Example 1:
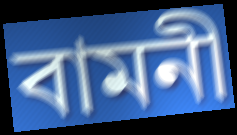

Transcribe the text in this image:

বামনী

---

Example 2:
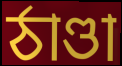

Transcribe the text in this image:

ঠাণ্ডা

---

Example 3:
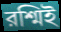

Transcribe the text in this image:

রশ্মিই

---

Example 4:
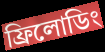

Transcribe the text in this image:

ফ্রিলোডিং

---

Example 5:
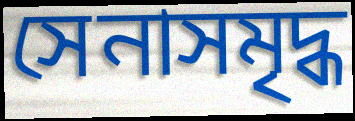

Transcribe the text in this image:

সেনাসমৃদ্ধ